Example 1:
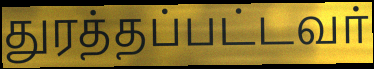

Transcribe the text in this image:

துரத்தப்பட்டவர்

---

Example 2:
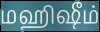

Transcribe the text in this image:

மஹிஷீம்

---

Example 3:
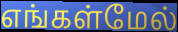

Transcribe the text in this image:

எங்கள்மேல்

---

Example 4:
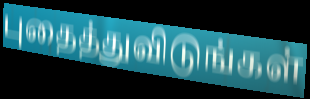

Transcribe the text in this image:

புதைத்துவிடுங்கள்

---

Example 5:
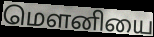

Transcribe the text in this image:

மௌனியை